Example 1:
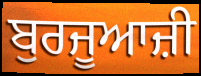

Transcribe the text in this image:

ਬੁਰਜੂਆਜ਼ੀ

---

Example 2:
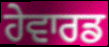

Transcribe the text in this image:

ਹੇਵਾਰਡ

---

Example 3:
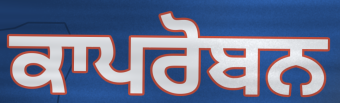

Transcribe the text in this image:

ਕਾਪਰੋਬਨ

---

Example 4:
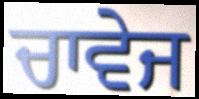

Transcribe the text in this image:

ਚਾਵੇਜ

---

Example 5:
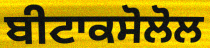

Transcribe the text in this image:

ਬੀਟਾਕਸੋਲੋਲ